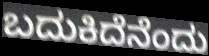
ಬದುಕಿದೆನೆಂದು